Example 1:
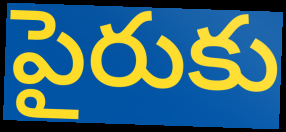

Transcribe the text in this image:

పైరుకు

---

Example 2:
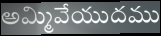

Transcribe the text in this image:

అమ్మివేయుదము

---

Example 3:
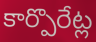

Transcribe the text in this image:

కార్పొరేట్ల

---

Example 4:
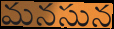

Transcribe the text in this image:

మనసున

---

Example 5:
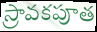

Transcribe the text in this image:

స్రావకపూత